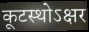
कूटस्थोऽक्षर